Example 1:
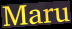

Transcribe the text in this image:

Maru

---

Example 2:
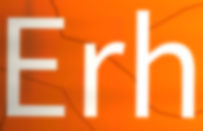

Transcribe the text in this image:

Erh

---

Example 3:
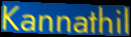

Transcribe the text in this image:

Kannathil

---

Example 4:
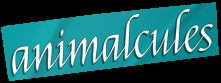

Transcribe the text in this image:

animalcules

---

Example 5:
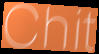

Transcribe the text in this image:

Chit